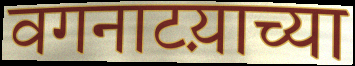
वगनाटय़ाच्या